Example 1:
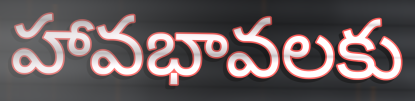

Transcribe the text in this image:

హావభావలకు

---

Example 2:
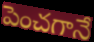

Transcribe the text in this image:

పెంచగానే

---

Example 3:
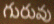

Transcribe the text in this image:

గురువు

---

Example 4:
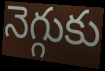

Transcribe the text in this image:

నెగ్గుకు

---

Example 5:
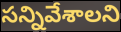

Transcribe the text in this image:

సన్నివేశాలని